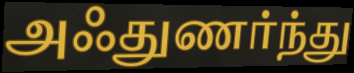
அஃதுணர்ந்து